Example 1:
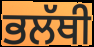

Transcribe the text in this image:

ਭਲੱਥੀ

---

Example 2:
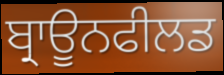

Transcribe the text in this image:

ਬ੍ਰਾਊਨਫੀਲਡ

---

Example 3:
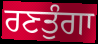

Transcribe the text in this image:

ਰਣਤੁੰਗਾ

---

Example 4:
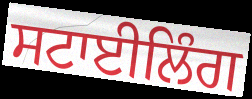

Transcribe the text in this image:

ਸਟਾਈਲਿੰਗ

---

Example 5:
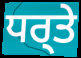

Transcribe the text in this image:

ਧਰ੍ਤੇ